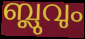
ബ്ലുവും